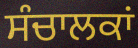
ਸੰਚਾਲਕਾਂ